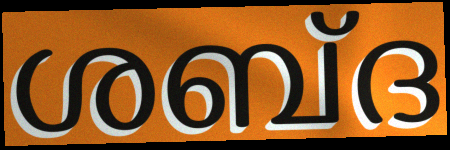
ശബ്‌ദ